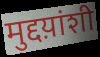
मुद्दय़ांशी